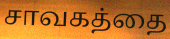
சாவகத்தை